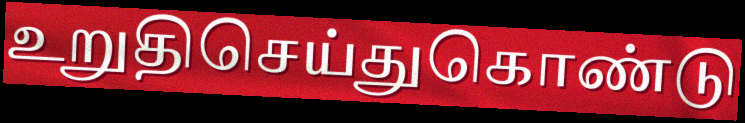
உறுதிசெய்துகொண்டு